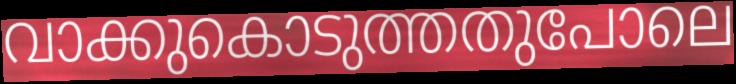
വാക്കുകൊടുത്തതുപോലെ